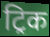
ट्रिक